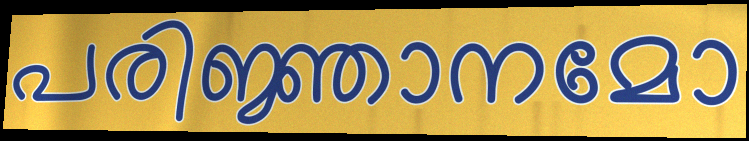
പരിജ്ഞാനമോ